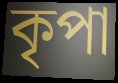
কৃপা